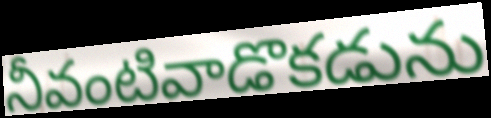
నీవంటివాడొకడును